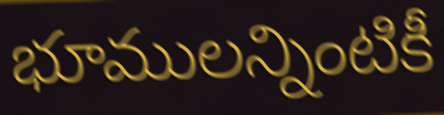
భూములన్నింటికీ